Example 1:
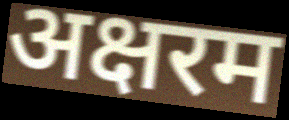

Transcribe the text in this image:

अक्षरम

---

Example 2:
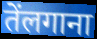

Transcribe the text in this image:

तेंलगाना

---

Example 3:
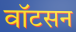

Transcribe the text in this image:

वॉटसन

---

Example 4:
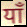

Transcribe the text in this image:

याँ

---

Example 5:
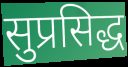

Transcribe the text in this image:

सुप्रसिद्ध